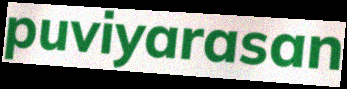
puviyarasan